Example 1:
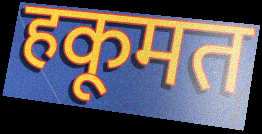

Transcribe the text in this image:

हकूमत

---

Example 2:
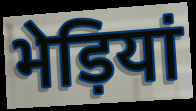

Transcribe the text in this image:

भेड़ियां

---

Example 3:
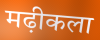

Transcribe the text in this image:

मढ़ीकला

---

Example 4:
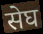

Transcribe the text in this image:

सेघ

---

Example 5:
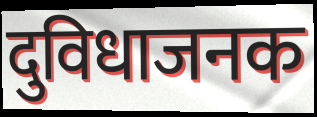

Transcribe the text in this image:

दुविधाजनक